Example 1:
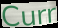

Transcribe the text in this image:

Curr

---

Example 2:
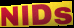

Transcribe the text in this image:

NIDs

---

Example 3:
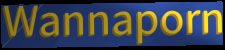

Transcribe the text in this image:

Wannaporn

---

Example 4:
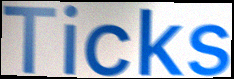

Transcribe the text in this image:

Ticks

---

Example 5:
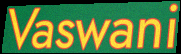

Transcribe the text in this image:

Vaswani